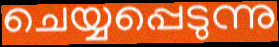
ചെയ്യപ്പെടുന്നു